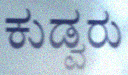
ಕುಡ್ವರು